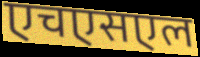
एचएसएल